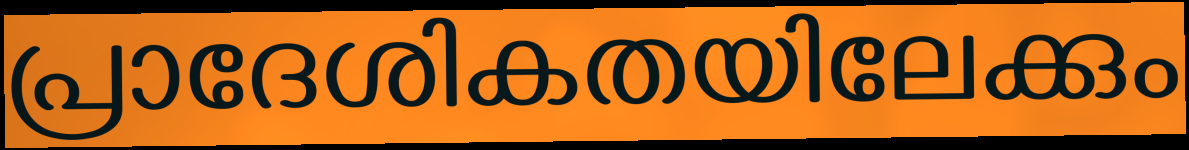
പ്രാദേശികതയിലേക്കും